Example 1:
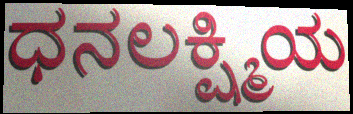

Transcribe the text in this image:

ಧನಲಕ್ಷ್ಮಿಯ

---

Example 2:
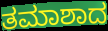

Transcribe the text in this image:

ತಮಾಶಾದ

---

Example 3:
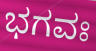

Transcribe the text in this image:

ಭಗವಃ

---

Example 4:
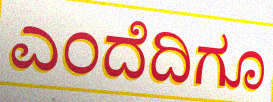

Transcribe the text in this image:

ಎಂದೆದಿಗೂ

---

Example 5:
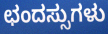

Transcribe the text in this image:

ಛಂದಸ್ಸುಗಳು